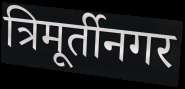
त्रिमूर्तीनगर